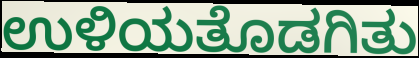
ಉಳಿಯತೊಡಗಿತು